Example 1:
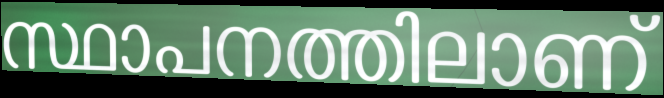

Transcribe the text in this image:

സ്ഥാപനത്തിലാണ്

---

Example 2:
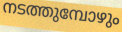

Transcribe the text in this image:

നടത്തുമ്പോഴും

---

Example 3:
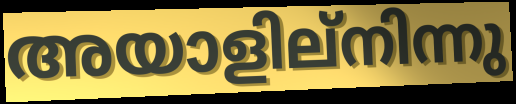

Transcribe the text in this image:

അയാളില്നിന്നു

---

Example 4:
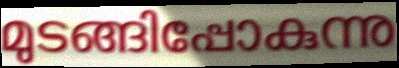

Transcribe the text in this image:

മുടങ്ങിപ്പോകുന്നു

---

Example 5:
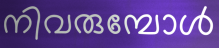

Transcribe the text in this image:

നിവരുമ്പോൾ